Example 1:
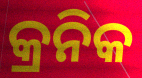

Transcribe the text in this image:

କ୍ରନିକ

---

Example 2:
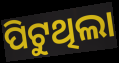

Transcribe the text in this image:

ପିଟୁଥିଲା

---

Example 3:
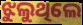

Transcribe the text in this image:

ଝୁଲୁଥିଲେ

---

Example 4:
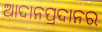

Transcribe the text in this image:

ଆଦାନପ୍ରଦାନର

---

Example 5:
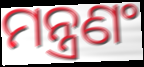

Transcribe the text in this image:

ମନ୍ତ୍ରଣଂ